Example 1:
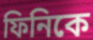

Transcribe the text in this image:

ফিনিকে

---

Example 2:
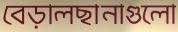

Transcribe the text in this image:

বেড়ালছানাগুলো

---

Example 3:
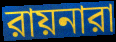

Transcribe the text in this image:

রায়নারা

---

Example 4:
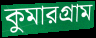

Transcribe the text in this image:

কুমারগ্রাম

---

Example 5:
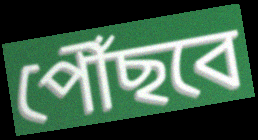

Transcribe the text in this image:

পৌঁছবে